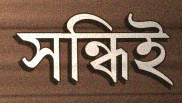
সন্ধিই